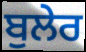
ਬੁਲੇਰ